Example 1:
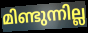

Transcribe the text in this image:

മിണ്ടുന്നില്ല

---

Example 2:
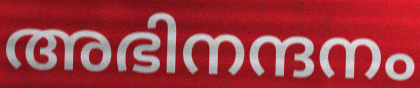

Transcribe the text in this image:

അഭിനന്ദനം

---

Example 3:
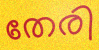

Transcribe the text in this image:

തേരി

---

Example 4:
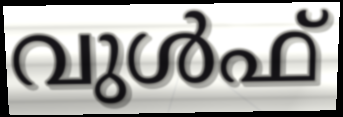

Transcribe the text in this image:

വുൾഫ്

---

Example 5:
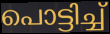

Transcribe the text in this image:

പൊട്ടിച്ച്